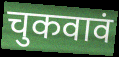
चुकवावं